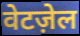
वेटज़ेल